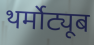
थर्मोट्यूब